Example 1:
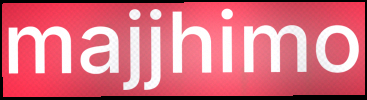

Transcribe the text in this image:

majjhimo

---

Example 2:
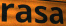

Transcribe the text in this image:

rasa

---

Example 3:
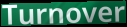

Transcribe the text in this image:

Turnover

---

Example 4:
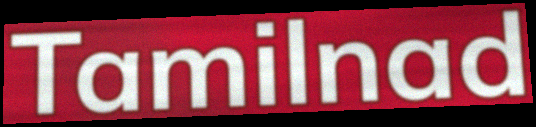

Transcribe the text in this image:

Tamilnad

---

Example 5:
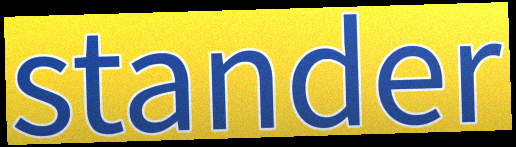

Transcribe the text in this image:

stander